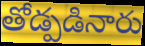
తోడ్పడినారు